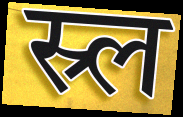
स्र्ल